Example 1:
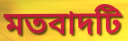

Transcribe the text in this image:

মতবাদটি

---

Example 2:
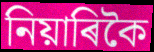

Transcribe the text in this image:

নিয়াৰিকৈ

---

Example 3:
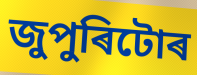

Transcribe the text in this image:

জুপুৰিটোৰ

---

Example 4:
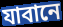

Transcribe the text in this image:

যাবানে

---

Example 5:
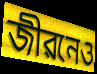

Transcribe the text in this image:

জীৱনেও